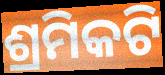
ଶ୍ରମିକଟି